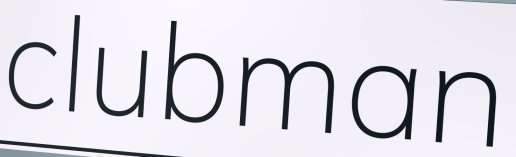
clubman